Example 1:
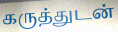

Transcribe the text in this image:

கருத்துடன்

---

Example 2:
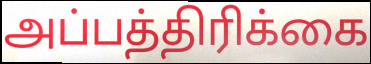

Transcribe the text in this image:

அப்பத்திரிக்கை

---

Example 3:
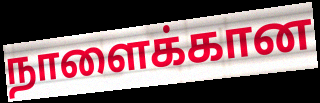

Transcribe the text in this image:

நாளைக்கான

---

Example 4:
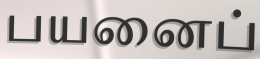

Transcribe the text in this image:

பயனைப்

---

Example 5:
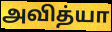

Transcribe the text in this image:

அவித்யா